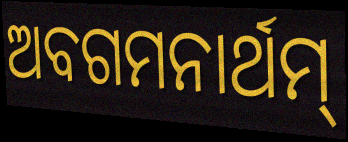
ଅବଗମନାର୍ଥମ୍